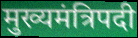
मुख्यमंत्रिपदी